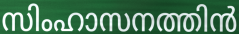
സിംഹാസനത്തിൻ